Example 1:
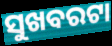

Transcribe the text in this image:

ସୁଖବରଟା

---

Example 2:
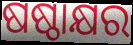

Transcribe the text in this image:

ଷଷ୍ଠାକ୍ଷର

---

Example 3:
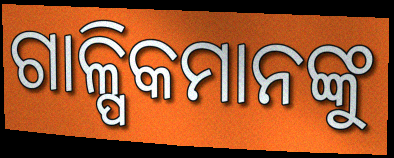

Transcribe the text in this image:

ଗାଳ୍ପିକମାନଙ୍କୁ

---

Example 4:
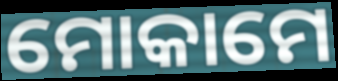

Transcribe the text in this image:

ମୋକାମେ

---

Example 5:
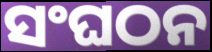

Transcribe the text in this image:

ସଂଘଠନ